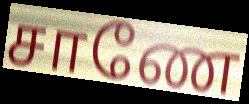
சாணே